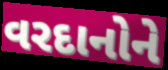
વરદાનોને